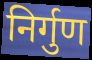
निर्गुण